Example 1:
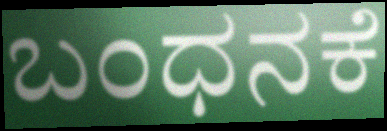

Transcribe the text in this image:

ಬಂಧನಕೆ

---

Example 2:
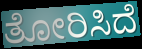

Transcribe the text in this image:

ತೋರಿಸಿದೆ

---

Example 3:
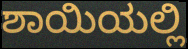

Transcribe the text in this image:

ಶಾಯಿಯಲ್ಲಿ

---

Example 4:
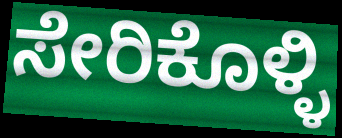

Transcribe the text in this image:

ಸೇರಿಕೊಳ್ಳಿ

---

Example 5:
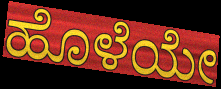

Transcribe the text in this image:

ಹೊಳೆಯೇ